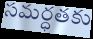
సమర్ధతకు